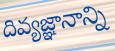
దివ్యజ్ఞానాన్ని